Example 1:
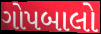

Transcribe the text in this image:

ગોપબાલો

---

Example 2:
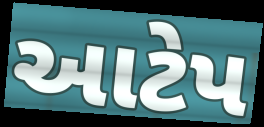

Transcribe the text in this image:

આટેપ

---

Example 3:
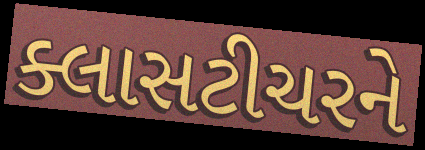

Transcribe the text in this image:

ક્લાસટીચરને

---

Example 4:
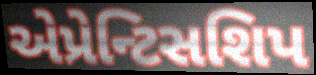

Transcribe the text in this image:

એપ્રેન્ટિસશિપ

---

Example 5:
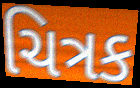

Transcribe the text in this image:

ચિત્રક